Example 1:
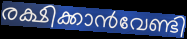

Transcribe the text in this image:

രക്ഷിക്കാൻവേണ്ടി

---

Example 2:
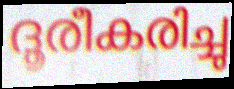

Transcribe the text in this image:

ദൂരീകരിച്ചു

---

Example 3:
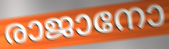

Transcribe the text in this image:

രാജാനോ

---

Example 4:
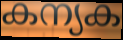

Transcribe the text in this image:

കന്യക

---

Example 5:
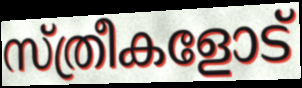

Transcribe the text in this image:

സ്ത്രീകളോട്